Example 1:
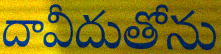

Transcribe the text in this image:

దావీదుతోను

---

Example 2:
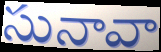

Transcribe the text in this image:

సునావా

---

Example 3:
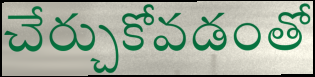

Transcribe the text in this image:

చేర్చుకోవడంతో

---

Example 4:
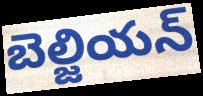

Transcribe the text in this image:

బెల్జియన్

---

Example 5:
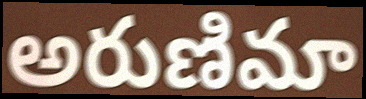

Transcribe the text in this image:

అరుణిమా